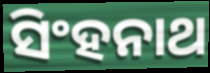
ସିଂହନାଥ